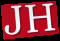
JH